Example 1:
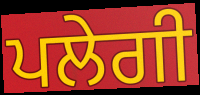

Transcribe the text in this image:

ਪਲੇਗੀ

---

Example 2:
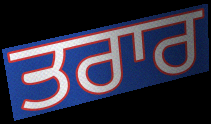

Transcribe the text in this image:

ਤਰਾਰ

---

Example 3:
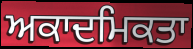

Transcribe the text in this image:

ਅਕਾਦਮਿਕਤਾ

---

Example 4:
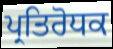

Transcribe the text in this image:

ਪ੍ਰਤਿਰੋਧਕ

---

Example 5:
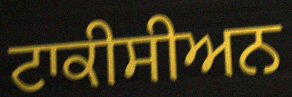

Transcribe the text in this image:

ਟਾਕੀਸੀਅਨ